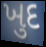
ખુદ